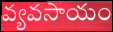
వ్యవసాయం